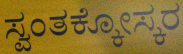
ಸ್ವಂತಕ್ಕೋಸ್ಕರ